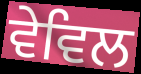
ਵੇਵਿਲ